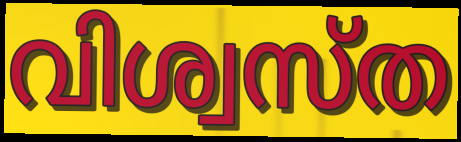
വിശ്വസ്ത